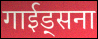
गाईड्सना